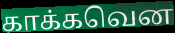
காக்கவென